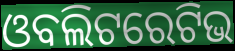
ଓବଲିଟରେଟିଭ